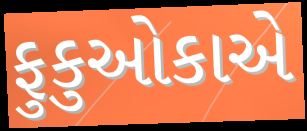
ફુકુઓકાએ